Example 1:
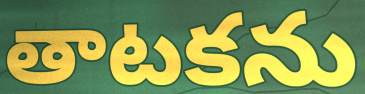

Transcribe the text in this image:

తాటకను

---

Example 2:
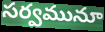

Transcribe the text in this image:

సర్వమునూ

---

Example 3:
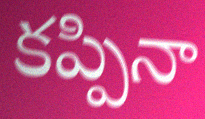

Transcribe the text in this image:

కప్పినా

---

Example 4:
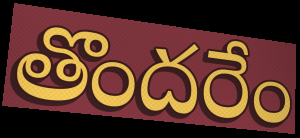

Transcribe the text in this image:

తొందరేం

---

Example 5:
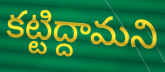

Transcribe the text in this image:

కట్టిద్దామని